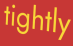
tightly